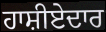
ਹਾਸ਼ੀਏਦਾਰ